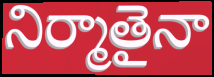
నిర్మాతైనా